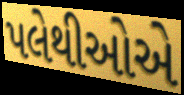
પલેથીઓએ